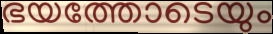
ഭയത്തോടെയും